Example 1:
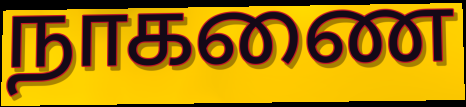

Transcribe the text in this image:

நாகணை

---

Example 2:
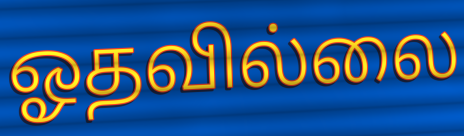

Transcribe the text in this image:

ஓதவில்லை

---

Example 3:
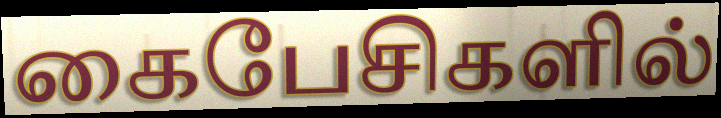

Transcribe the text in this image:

கைபேசிகளில்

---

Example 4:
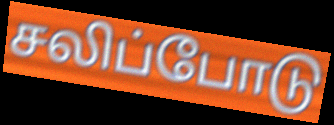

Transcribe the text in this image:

சலிப்போடு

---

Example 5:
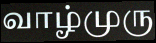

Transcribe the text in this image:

வாழ்முரு